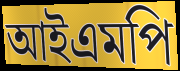
আইএমপি